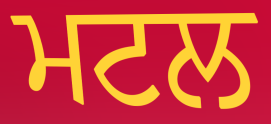
ਮਟਲ